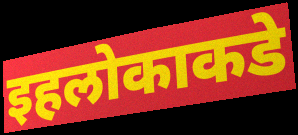
इहलोकाकडे